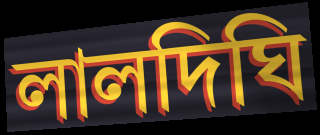
লালদিঘি